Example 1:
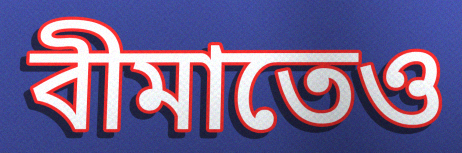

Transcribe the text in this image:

বীমাতেও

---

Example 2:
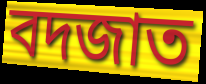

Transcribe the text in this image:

বদজাত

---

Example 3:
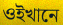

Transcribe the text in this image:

ওইখানে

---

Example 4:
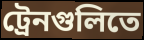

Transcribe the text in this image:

ট্রেনগুলিতে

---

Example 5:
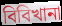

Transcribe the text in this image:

বিবিখানা